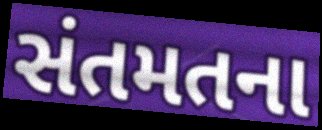
સંતમતના